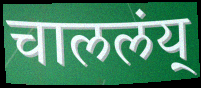
चाललंय्